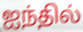
ஐந்தில்